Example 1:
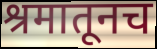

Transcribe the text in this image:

श्रमातूनच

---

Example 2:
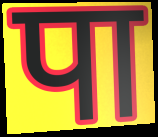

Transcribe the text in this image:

पा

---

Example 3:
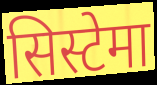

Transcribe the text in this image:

सिस्टेमा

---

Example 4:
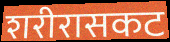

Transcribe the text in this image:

शरीरासकट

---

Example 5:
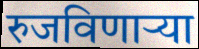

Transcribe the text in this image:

रुजविणाऱ्या